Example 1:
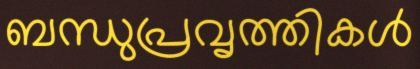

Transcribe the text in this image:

ബന്ധുപ്രവൃത്തികൾ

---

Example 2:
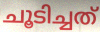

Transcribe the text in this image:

ചൂടിച്ചത്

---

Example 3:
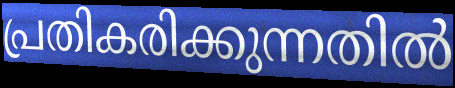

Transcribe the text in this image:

പ്രതികരിക്കുന്നതിൽ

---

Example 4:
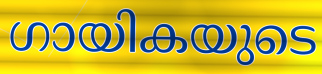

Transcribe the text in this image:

ഗായികയുടെ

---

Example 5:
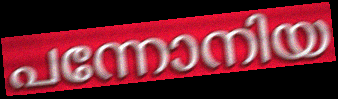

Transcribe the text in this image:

പന്നോനിയ